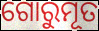
ଗୋରୁମୂତ